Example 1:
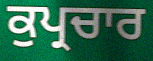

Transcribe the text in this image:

ਕੁਪ੍ਰਚਾਰ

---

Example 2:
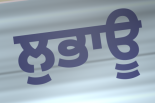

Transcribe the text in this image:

ਲੁਭਾਊ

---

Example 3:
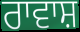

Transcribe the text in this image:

ਰਾਵਾਸ਼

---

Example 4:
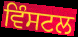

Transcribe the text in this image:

ਵਿੰਸਟਲ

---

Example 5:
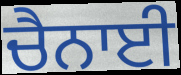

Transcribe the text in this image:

ਚੈਨਾਈ